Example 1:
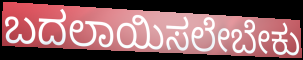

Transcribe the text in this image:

ಬದಲಾಯಿಸಲೇಬೇಕು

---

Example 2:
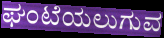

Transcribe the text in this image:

ಘಂಟೆಯಲುಗುವ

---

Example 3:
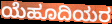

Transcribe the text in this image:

ಯೆಹೂದಿಯರ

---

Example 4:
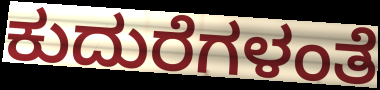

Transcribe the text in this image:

ಕುದುರೆಗಳಂತೆ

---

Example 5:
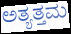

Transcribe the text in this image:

ಅತ್ಯತ್ತಮ